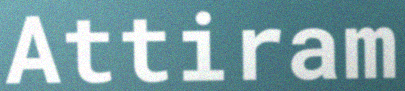
Attiram